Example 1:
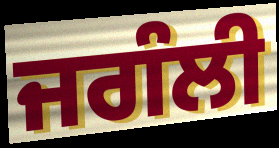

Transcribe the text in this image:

ਜਗੰਲੀ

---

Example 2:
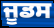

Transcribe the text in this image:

ਜੂਡਸ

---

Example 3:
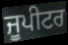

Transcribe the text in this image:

ਜੂਪੀਟਰ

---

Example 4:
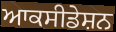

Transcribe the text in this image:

ਆਕਸੀਡੇਸ਼ਨ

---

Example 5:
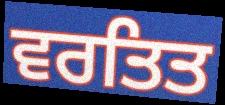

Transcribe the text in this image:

ਵਰਤਿਤ